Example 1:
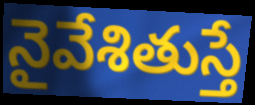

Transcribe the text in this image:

నైవేశితుస్తే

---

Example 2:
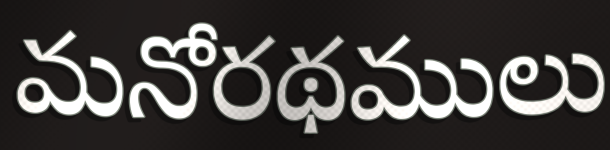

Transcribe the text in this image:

మనోరథములు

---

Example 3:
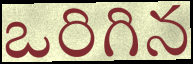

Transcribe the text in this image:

ఒరిగిన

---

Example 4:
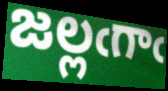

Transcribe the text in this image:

జల్లఁగాఁ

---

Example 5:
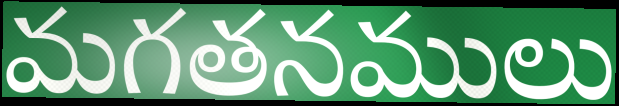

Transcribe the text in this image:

మగతనములు